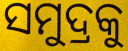
ସମୁଦ୍ରକୁ